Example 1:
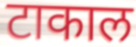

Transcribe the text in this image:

टाकाल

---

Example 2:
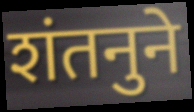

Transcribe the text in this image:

शंतनुने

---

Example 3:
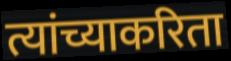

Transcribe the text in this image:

त्यांच्याकरिता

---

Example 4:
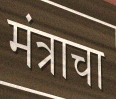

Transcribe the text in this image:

मंत्राचा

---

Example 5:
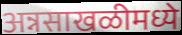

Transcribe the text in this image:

अन्नसाखळीमध्ये